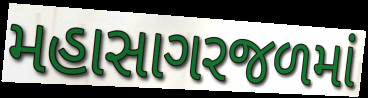
મહાસાગરજળમાં